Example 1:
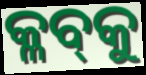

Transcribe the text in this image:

କ୍ଳବ୍‌କୁ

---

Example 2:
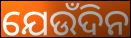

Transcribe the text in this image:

ଯେଉଁଦିନ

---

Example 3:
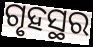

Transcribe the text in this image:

ଗୃହସ୍ଥର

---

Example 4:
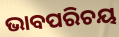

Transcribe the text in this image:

ଭାବପରିଚୟ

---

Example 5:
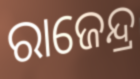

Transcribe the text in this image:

ରାଜେନ୍ଦ୍ର